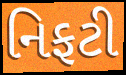
નિફટી